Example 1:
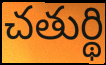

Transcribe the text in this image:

చతుర్థి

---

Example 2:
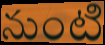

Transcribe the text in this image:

నుంటి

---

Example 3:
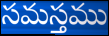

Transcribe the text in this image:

సమస్తము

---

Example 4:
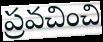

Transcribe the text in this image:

ప్రవచించి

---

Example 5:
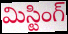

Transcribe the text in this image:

మిస్టింగ్